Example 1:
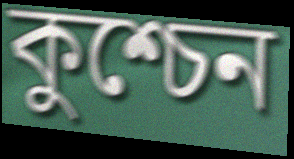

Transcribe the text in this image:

কুশ্চেন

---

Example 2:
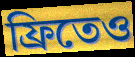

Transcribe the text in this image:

ফ্রিতেও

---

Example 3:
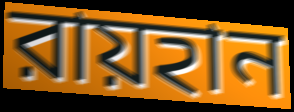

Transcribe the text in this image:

রায়হান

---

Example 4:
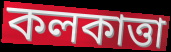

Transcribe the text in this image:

কলকাত্তা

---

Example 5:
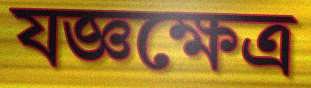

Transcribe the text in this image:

যজ্ঞক্ষেত্র